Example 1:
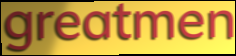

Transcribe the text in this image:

greatmen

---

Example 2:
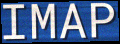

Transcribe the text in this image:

IMAP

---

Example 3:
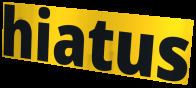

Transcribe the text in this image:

hiatus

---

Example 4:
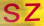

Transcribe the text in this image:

sz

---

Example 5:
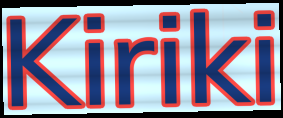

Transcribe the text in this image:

Kiriki